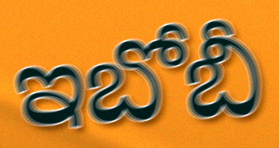
ఇబోబీ